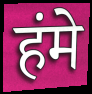
हंमे